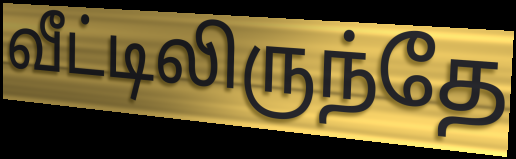
வீட்டிலிருந்தே